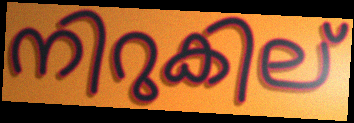
നിറുകില്